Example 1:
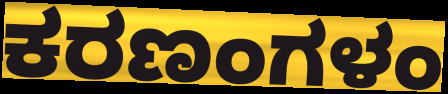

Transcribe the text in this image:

ಕರಣಂಗಳಂ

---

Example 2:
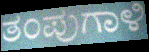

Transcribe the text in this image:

ತಂಪುಗಾಳಿ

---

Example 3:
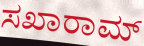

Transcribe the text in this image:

ಸಖಾರಾಮ್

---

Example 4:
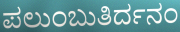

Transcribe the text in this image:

ಪಲುಂಬುತಿರ್ದನಂ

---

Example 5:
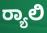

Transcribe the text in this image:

ರ‍್ಯಾಲಿ